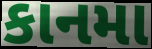
કાનમા